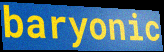
baryonic